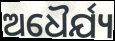
ଅଧୈର୍ଯ୍ୟ